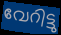
വേറിട്ടു